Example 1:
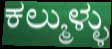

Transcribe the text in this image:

ಕಲ್ಮುಳ್ಳು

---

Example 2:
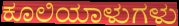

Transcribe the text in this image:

ಕೂಲಿಯಾಳುಗಳು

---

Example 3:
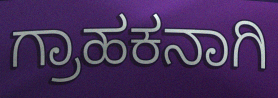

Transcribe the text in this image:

ಗ್ರಾಹಕನಾಗಿ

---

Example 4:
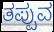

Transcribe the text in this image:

ತಪ್ಪುವ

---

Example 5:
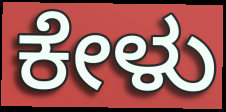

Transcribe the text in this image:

ಕೇಳು